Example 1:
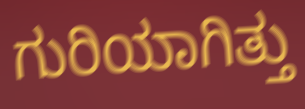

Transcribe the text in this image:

ಗುರಿಯಾಗಿತ್ತು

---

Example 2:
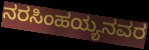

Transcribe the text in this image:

ನರಸಿಂಹಯ್ಯನವರ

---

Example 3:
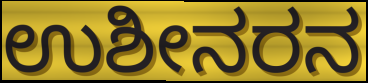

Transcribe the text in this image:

ಉಶೀನರನ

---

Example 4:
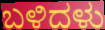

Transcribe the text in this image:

ಬಳಿದಳು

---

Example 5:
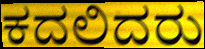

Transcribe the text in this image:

ಕದಲಿದರು